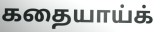
கதையாய்க்